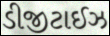
ડીજીટાઈઝ